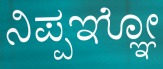
ನಿಪ್ಪಞ್ಞೋ